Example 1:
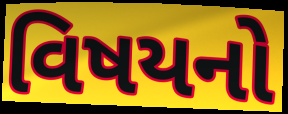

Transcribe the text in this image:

વિષયનો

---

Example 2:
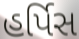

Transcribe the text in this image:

હર્પિસ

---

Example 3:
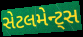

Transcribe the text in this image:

સેટલમેન્ટ્સ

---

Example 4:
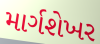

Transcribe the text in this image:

માર્ગશેખર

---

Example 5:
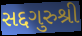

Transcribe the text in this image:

સદ્દગુરુશ્રી